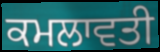
ਕਮਲਾਵਤੀ